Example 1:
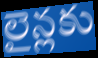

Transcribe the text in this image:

లైన్లకు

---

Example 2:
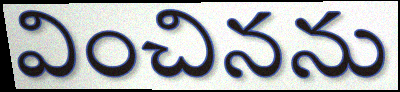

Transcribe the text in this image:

వించినను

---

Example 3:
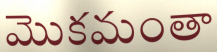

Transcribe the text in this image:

మొకమంతా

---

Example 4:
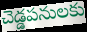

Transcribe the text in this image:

చెడ్డపనులకు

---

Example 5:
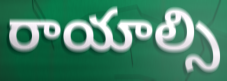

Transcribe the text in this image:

రాయాల్సి